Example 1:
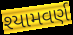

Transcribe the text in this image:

શ્યામવર્ણ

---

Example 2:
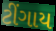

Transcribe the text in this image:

ટીંગાય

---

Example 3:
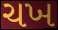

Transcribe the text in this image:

ચખ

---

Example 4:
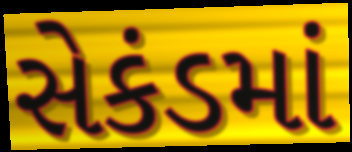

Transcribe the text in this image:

સેકંડમાં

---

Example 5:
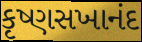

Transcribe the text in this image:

કૃષ્ણસખાનંદ